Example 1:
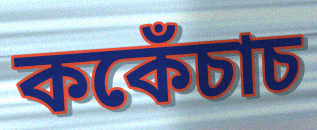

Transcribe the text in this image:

ককেঁচাচ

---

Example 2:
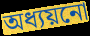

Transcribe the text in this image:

অধ্যয়নো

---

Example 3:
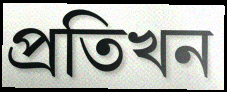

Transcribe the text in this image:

প্ৰতিখন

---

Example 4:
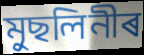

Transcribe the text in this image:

মুছলিনীৰ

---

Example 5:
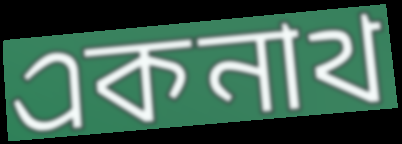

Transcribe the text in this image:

একনাথ